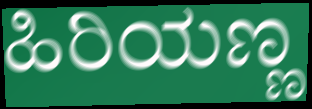
ಹಿರಿಯಣ್ಣ